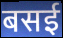
बसई